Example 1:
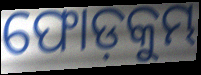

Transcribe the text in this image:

ଫୋଡ଼କୁମ୍ଭ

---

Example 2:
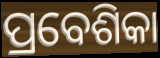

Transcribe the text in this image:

ପ୍ରବେଶିକା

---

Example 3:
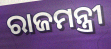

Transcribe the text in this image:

ରାଜମନ୍ତ୍ରୀ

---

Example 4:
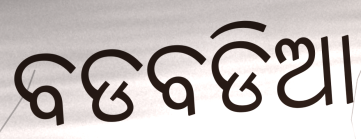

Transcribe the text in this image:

ବଡବଡିଆ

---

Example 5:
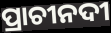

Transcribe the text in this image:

ପ୍ରାଚୀନଦୀ